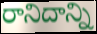
రానిదాన్ని